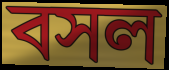
বসল